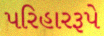
પરિહારરૂપે